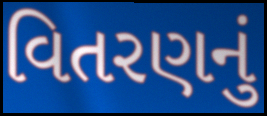
વિતરણનું